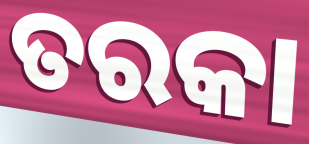
ତରକା